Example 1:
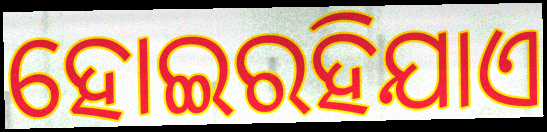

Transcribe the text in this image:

ହୋଇରହିଯାଏ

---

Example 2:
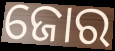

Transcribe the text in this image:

ଜୋର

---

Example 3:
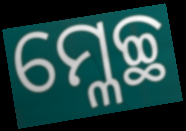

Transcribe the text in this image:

ମ୍ଳେଚ୍ଛ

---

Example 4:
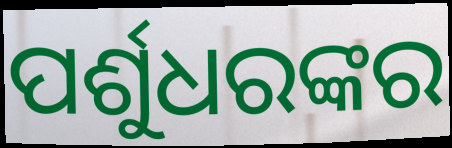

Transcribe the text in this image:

ପର୍ଶୁଧରଙ୍କର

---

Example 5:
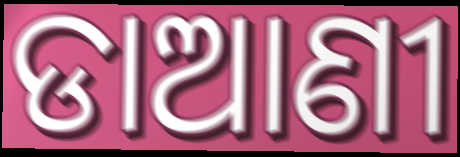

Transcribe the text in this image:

ଡାଆଣୀ